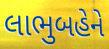
લાભુબહેને